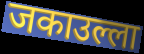
जकाउल्ला